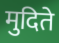
मुदिते